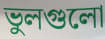
ভুলগুলো